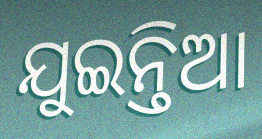
ଯୁଇନ୍ତିଆ